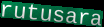
rutusara